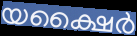
യക്ഷൈർ